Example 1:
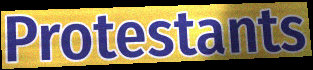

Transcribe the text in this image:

Protestants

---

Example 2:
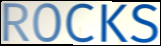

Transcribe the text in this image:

ROCKS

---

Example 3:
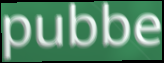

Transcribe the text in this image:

pubbe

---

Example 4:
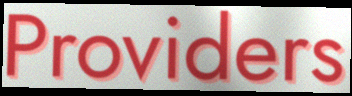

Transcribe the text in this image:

Providers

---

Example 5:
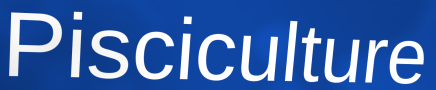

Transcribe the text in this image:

Pisciculture